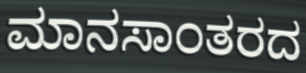
ಮಾನಸಾಂತರದ